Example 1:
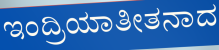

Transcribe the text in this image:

ಇಂದ್ರಿಯಾತೀತನಾದ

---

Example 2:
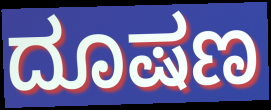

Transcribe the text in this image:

ದೂಷಣ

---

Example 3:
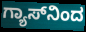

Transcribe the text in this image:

ಗ್ಯಾಸ್‌ನಿಂದ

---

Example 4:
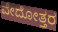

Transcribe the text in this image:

ವೇದೋತ್ತರ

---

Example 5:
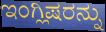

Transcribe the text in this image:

ಇಂಗ್ಲಿಷರನ್ನು